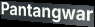
Pantangwar